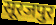
सूरजपुर